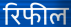
रिफील